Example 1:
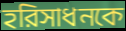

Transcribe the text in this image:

হরিসাধনকে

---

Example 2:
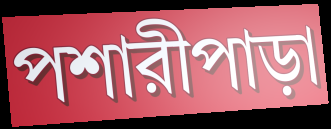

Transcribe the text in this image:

পশারীপাড়া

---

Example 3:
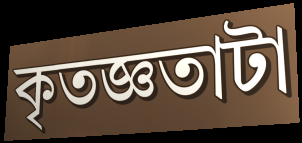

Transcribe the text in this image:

কৃতজ্ঞতাটা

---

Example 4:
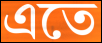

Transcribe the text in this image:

এতে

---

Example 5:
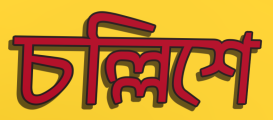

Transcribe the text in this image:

চল্লিশে